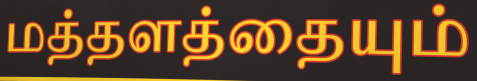
மத்தளத்தையும்